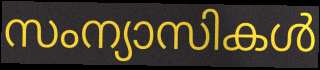
സംന്യാസികൾ